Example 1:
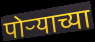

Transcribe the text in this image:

पोऱ्याच्या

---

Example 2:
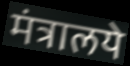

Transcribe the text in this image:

मंत्रालये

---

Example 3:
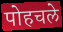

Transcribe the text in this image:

पोहचले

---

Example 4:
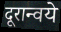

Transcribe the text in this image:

दूरान्वये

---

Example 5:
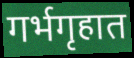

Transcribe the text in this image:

गर्भगृहात